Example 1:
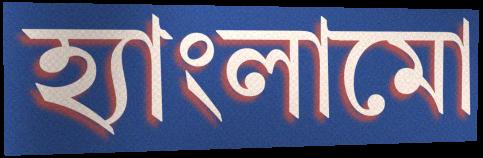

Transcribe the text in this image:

হ্যাংলামো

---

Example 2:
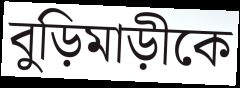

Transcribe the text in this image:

বুড়িমাড়ীকে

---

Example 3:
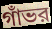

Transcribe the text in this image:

গাঁভর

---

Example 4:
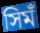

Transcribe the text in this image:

সিমঁ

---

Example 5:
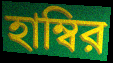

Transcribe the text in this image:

হাম্বির